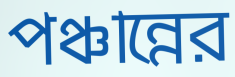
পঞ্চান্নের